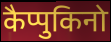
कैप्पुकिनो